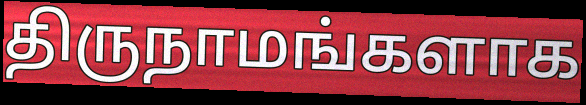
திருநாமங்களாக